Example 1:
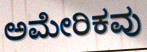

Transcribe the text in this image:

ಅಮೇರಿಕವು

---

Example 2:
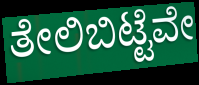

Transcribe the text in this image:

ತೇಲಿಬಿಟ್ಟೆವೇ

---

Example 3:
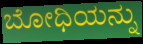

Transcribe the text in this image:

ಬೋಧಿಯನ್ನು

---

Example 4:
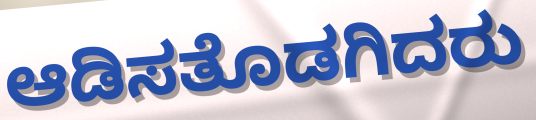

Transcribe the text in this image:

ಆಡಿಸತೊಡಗಿದರು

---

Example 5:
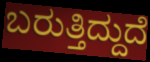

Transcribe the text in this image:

ಬರುತ್ತಿದ್ದುದೆ